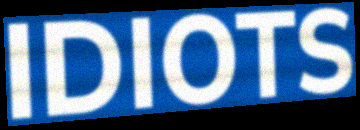
IDIOTS